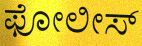
ಫೋಲೀಸ್